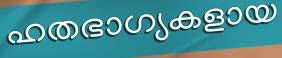
ഹതഭാഗ്യകളായ